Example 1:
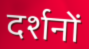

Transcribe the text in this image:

दर्शनों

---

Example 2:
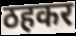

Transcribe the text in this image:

ठहकर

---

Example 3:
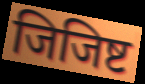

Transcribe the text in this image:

जिजिष्ट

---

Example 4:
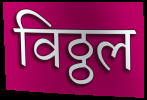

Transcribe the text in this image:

विठ्ठल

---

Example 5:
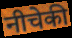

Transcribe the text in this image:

नीचेकी